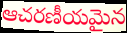
ఆచరణీయమైన